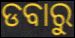
ଡବାରୁ